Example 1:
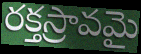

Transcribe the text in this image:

రక్తస్రావమై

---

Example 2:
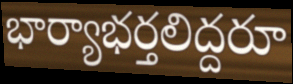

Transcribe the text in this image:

భార్యాభర్తలిద్దరూ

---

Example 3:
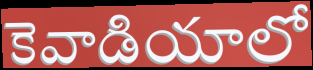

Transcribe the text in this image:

కెవాడియాలో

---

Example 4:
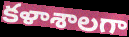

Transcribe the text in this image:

కళాశాలగా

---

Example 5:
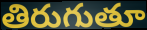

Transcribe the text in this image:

తిరుగుతూ